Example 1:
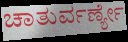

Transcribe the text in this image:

ಚಾತುರ್ವರ್ಣ್ಯೇ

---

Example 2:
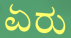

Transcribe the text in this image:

ಏರು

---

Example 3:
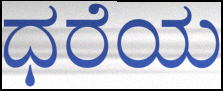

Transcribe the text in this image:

ಧರೆಯ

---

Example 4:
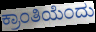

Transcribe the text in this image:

ಕ್ರಾಂತಿಯೆಂದು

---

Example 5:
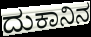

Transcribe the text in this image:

ದುಕಾನಿನ